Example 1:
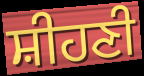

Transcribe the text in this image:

ਸ਼ੀਹਣੀ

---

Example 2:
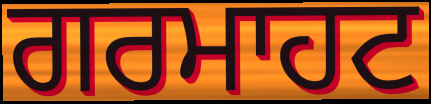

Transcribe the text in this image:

ਗਰਮਾਹਟ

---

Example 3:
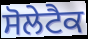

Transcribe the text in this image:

ਸੋਲੇਟੈਕ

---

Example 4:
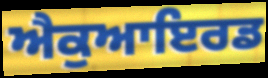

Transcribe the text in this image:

ਐਕੁਆਇਰਡ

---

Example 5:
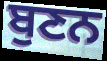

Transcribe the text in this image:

ਬੁਣਨ